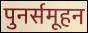
पुनर्समूहन